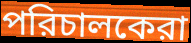
পরিচালকেরা